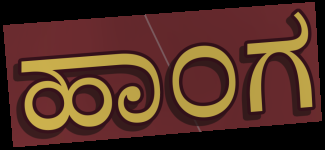
ಹಾಂಗ